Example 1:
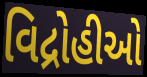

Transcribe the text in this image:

વિદ્રોહીઓ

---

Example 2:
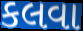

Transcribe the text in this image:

કલવા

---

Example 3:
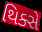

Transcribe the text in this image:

થિક્સે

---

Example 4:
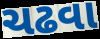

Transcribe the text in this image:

ચઢવા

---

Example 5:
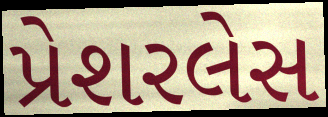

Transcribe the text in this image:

પ્રેશરલેસ